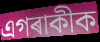
এগৰাকীক